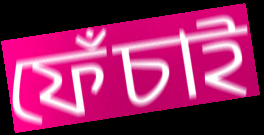
ফেঁচাই